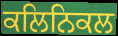
ਕਲਿਨਿਕਲ